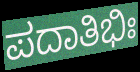
ಪದಾತಿಭಿಃ